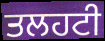
ਤਲਹਟੀ